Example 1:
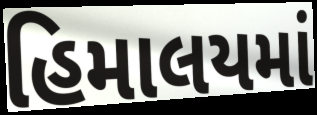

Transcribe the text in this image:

હિમાલયમાં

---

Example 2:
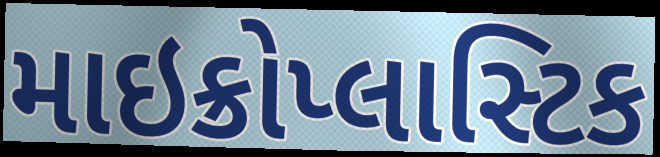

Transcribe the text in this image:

માઇક્રોપ્લાસ્ટિક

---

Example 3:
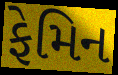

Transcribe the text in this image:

ફેમિન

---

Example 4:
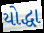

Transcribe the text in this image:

યોદ્ધા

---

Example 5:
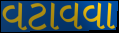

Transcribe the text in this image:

વટાવવા